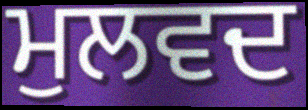
ਮੁਲਵਦ